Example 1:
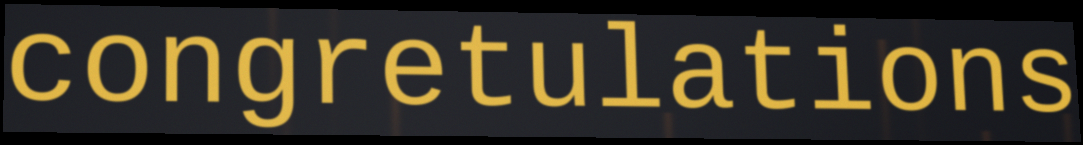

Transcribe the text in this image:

congretulations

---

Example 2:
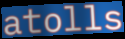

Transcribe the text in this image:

atolls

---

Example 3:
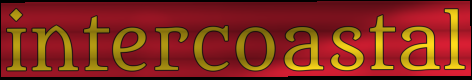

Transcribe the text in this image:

intercoastal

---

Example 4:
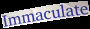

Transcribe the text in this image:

Immaculate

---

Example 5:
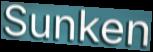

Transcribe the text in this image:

Sunken